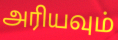
அரியவும்